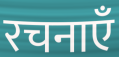
रचनाएँ